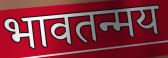
भावतन्मय